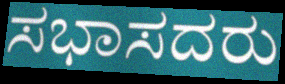
ಸಭಾಸದರು